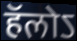
हॅलोऽ